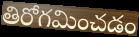
తిరోగమించడం